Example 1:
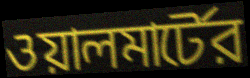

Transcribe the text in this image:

ওয়ালমার্টের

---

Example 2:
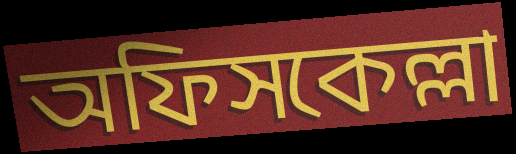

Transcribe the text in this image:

অফিসকেল্লা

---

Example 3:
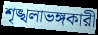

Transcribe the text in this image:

শৃঙ্খলাভঙ্গকারী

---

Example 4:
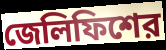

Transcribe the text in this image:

জেলিফিশের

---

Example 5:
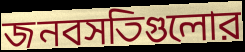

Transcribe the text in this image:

জনবসতিগুলোর